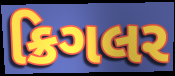
ક્રિગલર